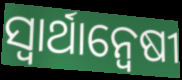
ସ୍ବାର୍ଥାନ୍ବେଷୀ